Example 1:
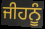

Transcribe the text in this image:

ਜੀਹਨੂੰ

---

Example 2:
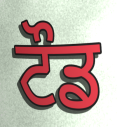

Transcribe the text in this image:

ਟੌਡ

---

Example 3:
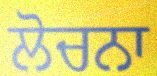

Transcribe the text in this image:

ਲੋਚਨਾ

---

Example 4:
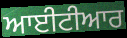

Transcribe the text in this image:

ਆਈਟੀਆਰ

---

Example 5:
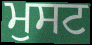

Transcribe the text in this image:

ਮੁਸਟ